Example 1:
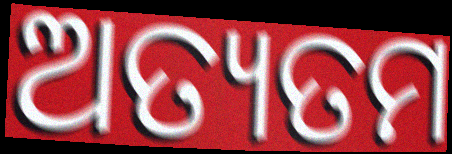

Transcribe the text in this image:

ଅତ୍ୟତମ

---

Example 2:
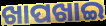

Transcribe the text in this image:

ଖାପଖାଇ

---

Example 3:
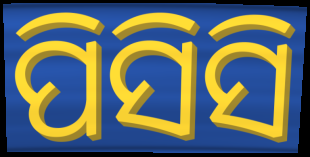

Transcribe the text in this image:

ପିସିସି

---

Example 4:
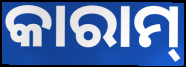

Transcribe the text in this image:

କାରାମ୍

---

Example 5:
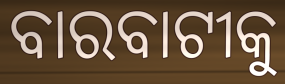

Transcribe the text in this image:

ବାରବାଟୀକୁ